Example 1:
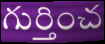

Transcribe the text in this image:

గుర్తించ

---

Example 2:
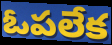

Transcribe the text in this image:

ఓపలేక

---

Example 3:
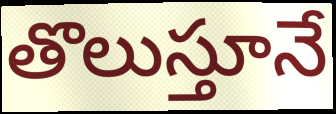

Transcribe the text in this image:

తొలుస్తూనే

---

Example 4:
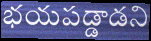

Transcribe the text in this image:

భయపడ్డాడని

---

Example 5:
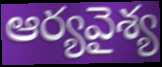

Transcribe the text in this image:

ఆర్యవైశ్య